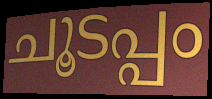
ചൂടപ്പം